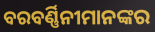
ବରବର୍ଣ୍ଣିନୀମାନଙ୍କର